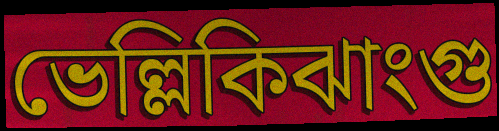
ভেল্লিকিঝাংগু